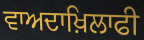
ਵਾਅਦਾਖ਼ਿਲਾਫੀ